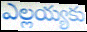
ఎల్లయ్యకు